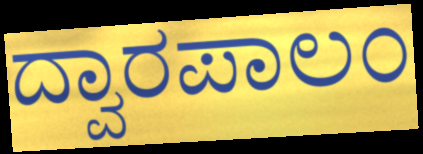
ದ್ವಾರಪಾಲಂ